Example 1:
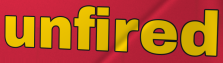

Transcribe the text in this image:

unfired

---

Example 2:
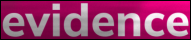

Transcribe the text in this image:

evidence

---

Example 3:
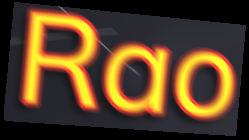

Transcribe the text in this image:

Rao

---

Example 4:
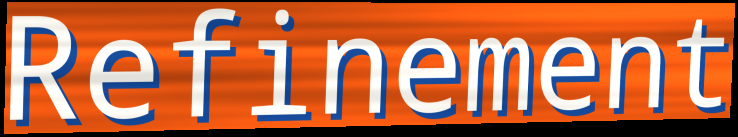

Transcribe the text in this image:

Refinement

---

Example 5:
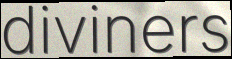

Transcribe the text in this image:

diviners